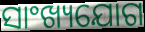
ସାଂଖ୍ୟଯୋଗ